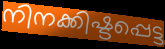
നിനക്കിഷ്ടപ്പെട്ട